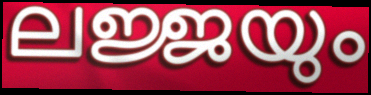
ലജ്ജയും